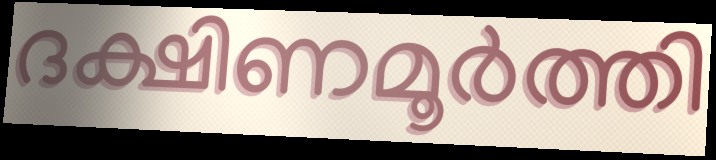
ദക്ഷിണമൂർത്തി